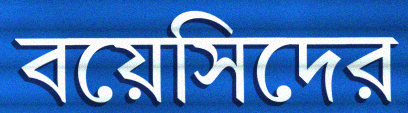
বয়েসিদের